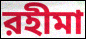
রহীমা